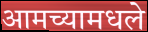
आमच्यामधले